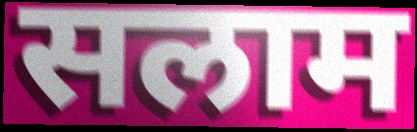
सलाम